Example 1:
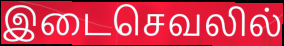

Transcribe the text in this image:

இடைசெவலில்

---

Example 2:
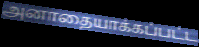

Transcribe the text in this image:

அனாதையாக்கப்பட்ட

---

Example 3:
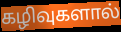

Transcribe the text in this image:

கழிவுகளால்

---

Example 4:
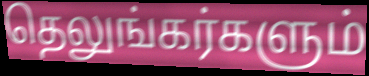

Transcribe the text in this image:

தெலுங்கர்களும்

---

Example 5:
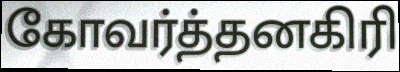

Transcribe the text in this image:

கோவர்த்தனகிரி